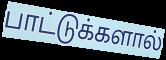
பாட்டுக்களால்